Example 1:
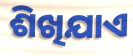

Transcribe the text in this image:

ଶିଖିଯାଏ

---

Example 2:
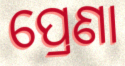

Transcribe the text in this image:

ପ୍ରେଣା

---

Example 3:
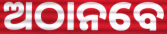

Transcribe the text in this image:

ଅଠାନବେ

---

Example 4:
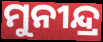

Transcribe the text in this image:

ମୁନୀନ୍ଦ୍ର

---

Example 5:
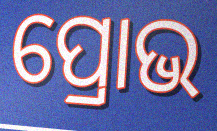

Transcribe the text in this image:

ପ୍ରୋଭ